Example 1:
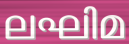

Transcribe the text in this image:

ലഘിമ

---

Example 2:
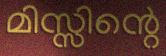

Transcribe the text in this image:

മിസ്സിന്റെ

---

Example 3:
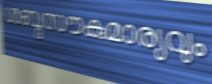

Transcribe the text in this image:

ശബ്ദസൗകുമാര്യവും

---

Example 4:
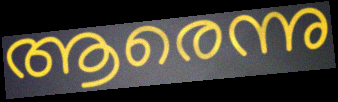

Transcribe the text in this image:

ആരെന്നു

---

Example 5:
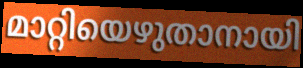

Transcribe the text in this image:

മാറ്റിയെഴുതാനായി